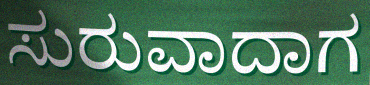
ಸುರುವಾದಾಗ